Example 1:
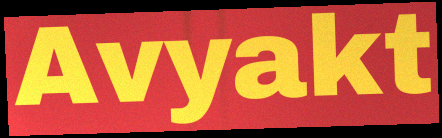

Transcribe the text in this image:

Avyakt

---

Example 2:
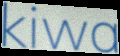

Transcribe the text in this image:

kiwa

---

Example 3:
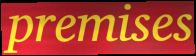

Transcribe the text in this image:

premises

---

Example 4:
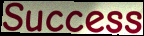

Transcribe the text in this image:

Success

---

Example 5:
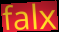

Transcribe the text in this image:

falx